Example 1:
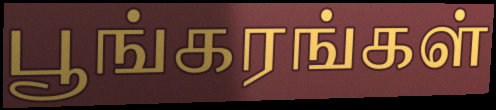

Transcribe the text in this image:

பூங்கரங்கள்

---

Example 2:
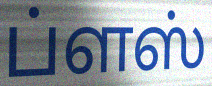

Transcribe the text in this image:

ப்ளஸ்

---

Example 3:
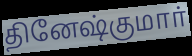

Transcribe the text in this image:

தினேஷ்குமார்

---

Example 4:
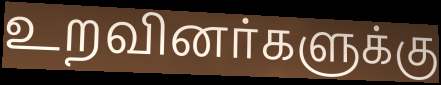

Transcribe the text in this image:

உறவினர்களுக்கு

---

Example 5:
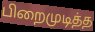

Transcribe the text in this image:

பிறைமுடித்த